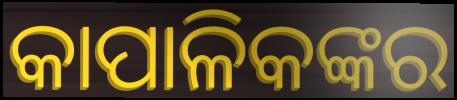
କାପାଳିକଙ୍କର